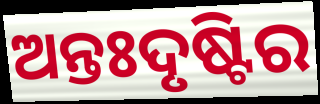
ଅନ୍ତଃଦୃଷ୍ଟିର